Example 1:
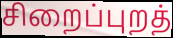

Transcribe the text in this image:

சிறைப்புறத்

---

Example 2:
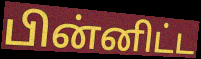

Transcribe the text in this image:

பின்னிட்ட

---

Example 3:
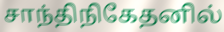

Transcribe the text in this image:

சாந்திநிகேதனில்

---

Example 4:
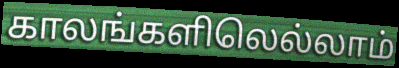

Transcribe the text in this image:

காலங்களிலெல்லாம்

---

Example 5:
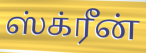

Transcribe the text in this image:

ஸ்க்ரீன்